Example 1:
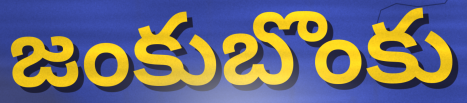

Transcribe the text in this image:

జంకుబొంకు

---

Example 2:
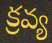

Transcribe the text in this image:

క్రవ్య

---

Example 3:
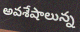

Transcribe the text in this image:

అవశేషాలున్న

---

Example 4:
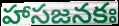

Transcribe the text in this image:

హాసజనకః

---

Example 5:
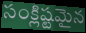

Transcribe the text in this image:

సంక్లిష్టమైన